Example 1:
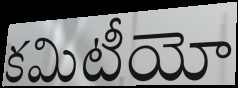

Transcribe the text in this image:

కమిటీయో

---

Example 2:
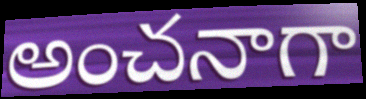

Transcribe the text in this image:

అంచనాగా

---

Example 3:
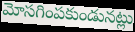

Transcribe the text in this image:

మోసగింపకుండునట్లు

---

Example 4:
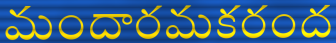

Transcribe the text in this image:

మందారమకరంద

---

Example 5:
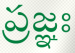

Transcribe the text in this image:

ప్రజ్ఞః